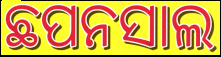
ଛପନସାଲ